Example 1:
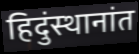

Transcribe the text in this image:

हिदुंस्थानांत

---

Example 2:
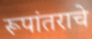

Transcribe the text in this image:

रूपांतराचे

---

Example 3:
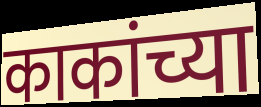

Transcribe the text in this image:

काकांच्या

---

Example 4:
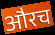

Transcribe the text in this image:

औरच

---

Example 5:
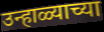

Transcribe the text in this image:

उन्हाळ्याच्या